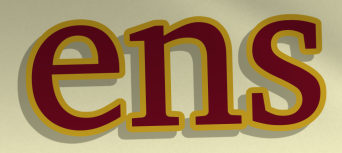
ens